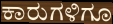
ಕಾರುಗಳಿಗೂ